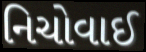
નિચોવાઈ